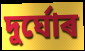
দুৰ্ঘোৰ